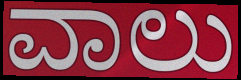
ವಾಲು